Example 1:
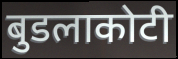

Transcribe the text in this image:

बुडलाकोटी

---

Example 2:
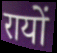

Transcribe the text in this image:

रायों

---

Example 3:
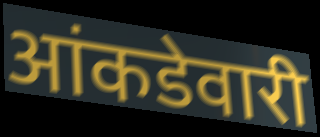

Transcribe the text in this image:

आंकडेवारी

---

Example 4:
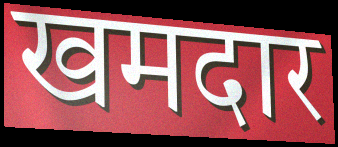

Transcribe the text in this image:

खमदार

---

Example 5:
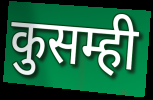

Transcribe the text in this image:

कुसम्ही